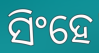
ସିଂହେ